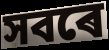
সবৰে